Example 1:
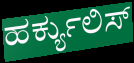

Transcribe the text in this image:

ಹರ್ಕ್ಯುಲಿಸ್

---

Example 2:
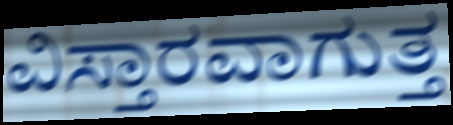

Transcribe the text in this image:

ವಿಸ್ತಾರವಾಗುತ್ತ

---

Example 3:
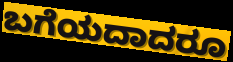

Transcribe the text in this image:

ಬಗೆಯದಾದರೂ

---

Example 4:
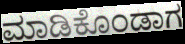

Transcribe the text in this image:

ಮಾಡಿಕೊಂಡಾಗ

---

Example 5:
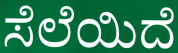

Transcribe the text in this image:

ಸೆಲೆಯಿದೆ